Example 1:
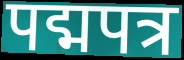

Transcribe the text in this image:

पद्मपत्र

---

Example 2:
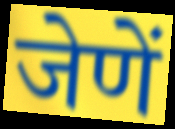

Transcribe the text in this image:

जेणें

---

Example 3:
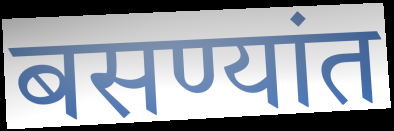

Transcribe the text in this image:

बसण्यांत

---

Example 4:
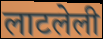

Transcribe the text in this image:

लाटलेली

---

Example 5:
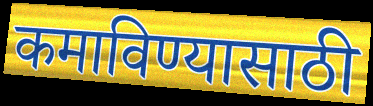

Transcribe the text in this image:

कमाविण्यासाठी